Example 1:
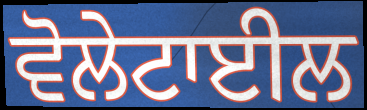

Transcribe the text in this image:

ਵੋਲੇਟਾਈਲ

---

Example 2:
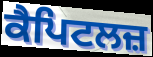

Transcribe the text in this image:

ਕੈਪਿਟਲਜ਼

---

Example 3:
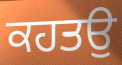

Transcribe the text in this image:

ਕਹਤਉ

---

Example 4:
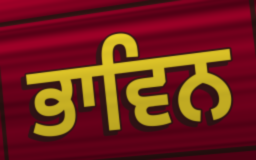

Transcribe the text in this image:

ਭਾਵਿਨ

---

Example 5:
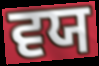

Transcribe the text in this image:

ਵਯ